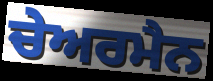
ਚੇਅਰਮੈਨ